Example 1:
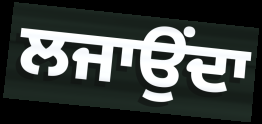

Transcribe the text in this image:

ਲਜਾਉਂਦਾ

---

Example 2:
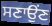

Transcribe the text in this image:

ਸਣਾਉਂਣ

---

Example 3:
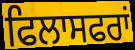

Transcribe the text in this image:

ਫਿਲਾਸਫਰਾਂ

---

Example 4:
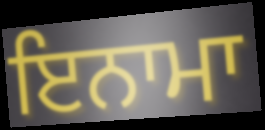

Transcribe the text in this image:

ਇਨਾਮਾ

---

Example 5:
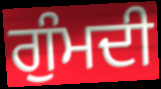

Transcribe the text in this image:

ਗੁੰਮਦੀ